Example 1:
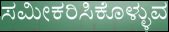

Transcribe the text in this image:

ಸಮೀಕರಿಸಿಕೊಳ್ಳುವ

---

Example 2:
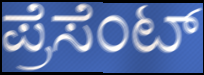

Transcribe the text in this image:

ಪ್ರೆಸೆಂಟ್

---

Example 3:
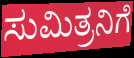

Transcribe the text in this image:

ಸುಮಿತ್ರನಿಗೆ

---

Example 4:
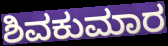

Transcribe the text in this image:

ಶಿವಕುಮಾರ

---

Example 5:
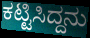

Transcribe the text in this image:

ಕಟ್ಟಿಸಿದ್ದನು